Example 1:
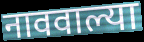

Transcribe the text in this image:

नाववाल्या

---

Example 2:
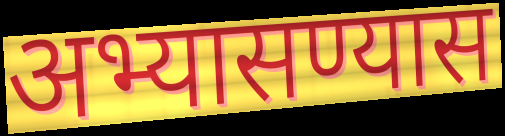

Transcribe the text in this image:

अभ्यासण्यास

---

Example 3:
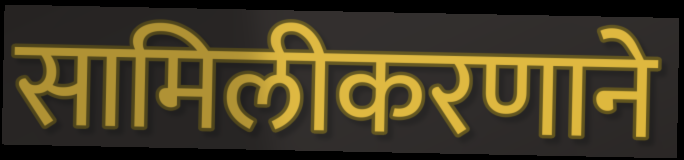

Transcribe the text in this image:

सामिलीकरणाने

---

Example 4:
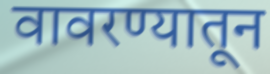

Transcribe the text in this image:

वावरण्यातून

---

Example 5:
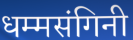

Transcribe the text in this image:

धम्मसंगिनी